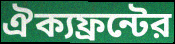
ঐক্যফ্রন্টের